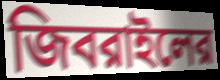
জিবরাইলের